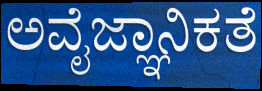
ಅವೈಜ್ಞಾನಿಕತೆ